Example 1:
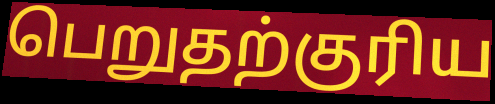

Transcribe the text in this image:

பெறுதற்குரிய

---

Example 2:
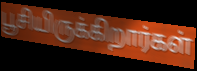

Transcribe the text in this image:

பூசியிருக்கிறார்கள்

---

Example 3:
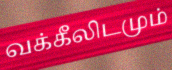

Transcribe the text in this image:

வக்கீலிடமும்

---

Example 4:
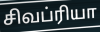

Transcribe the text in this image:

சிவப்ரியா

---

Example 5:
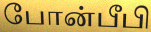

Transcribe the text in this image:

போன்பீபி